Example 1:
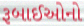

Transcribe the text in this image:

રૂબાઈઓનો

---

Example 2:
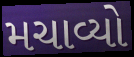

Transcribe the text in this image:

મચાવ્યો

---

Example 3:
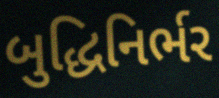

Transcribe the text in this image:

બુદ્ધિનિર્ભર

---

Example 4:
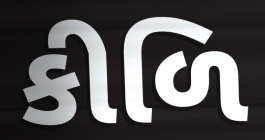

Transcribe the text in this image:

કીળિ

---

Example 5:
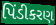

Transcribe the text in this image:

પિંડીકરણ